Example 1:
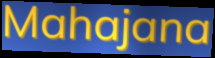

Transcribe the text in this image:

Mahajana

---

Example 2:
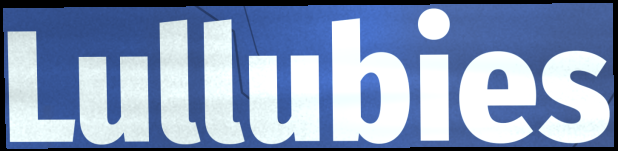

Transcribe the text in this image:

Lullubies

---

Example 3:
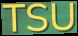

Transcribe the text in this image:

TSU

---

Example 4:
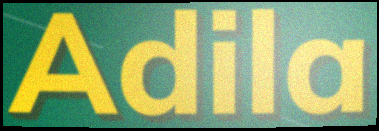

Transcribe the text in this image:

Adila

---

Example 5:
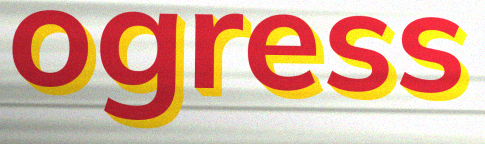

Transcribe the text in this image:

ogress